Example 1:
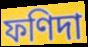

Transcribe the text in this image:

ফণিদা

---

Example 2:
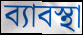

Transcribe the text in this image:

ব্যাবস্থা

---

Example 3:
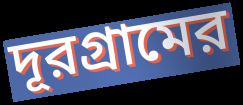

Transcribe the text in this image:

দূরগ্রামের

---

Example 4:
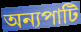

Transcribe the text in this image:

অন্যপাটি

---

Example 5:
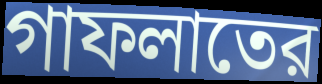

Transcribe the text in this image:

গাফলাতের